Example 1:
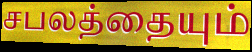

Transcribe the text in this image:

சபலத்தையும்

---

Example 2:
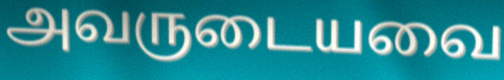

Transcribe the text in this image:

அவருடையவை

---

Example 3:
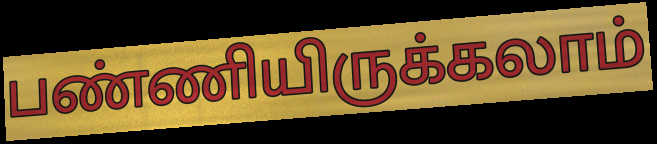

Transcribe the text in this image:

பண்ணியிருக்கலாம்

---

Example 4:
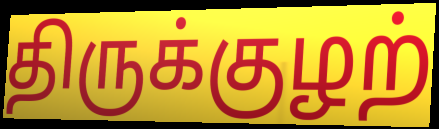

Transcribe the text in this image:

திருக்குழற்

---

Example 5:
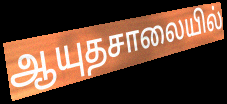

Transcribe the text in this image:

ஆயுதசாலையில்